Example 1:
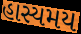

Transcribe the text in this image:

હાસ્યમય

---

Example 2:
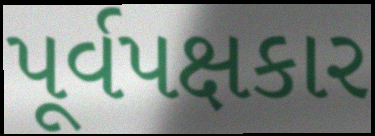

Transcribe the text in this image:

પૂર્વપક્ષકાર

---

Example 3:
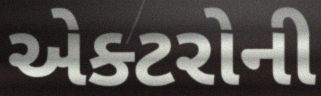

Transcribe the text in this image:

એક્ટરોની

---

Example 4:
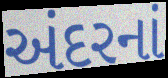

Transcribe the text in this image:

અંદરનાં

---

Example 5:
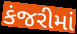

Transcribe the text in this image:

કંજરીમાં